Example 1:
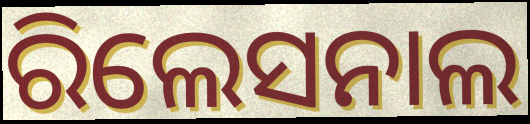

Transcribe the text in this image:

ରିଲେସନାଲ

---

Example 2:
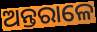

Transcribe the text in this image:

ଅନ୍ତରାଳେ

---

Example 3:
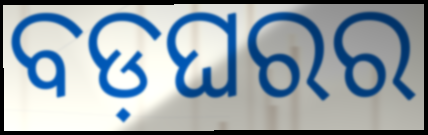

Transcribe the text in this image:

ବଡ଼ଘରର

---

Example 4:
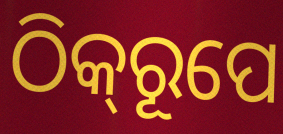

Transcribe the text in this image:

ଠିକ୍‍ରୂପେ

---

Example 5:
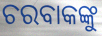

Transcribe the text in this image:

ଚରବାକଙ୍କୁ